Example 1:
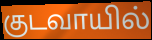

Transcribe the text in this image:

குடவாயில்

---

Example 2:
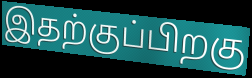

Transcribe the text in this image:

இதற்குப்பிறகு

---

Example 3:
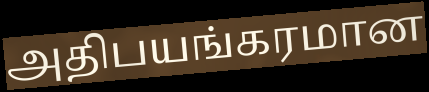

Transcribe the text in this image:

அதிபயங்கரமான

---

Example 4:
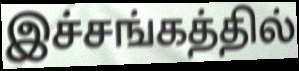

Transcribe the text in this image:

இச்சங்கத்தில்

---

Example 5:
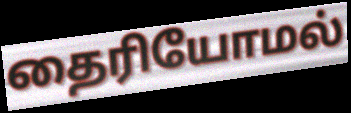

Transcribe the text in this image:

தைரியோமல்